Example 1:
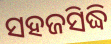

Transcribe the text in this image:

ସହଜସିଦ୍ଧି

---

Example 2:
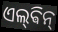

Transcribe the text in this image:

ଏଲ୍‌ଵିନ୍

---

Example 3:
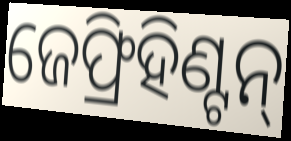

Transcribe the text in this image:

ଜେଫ୍ରିହିଣ୍ଟନ୍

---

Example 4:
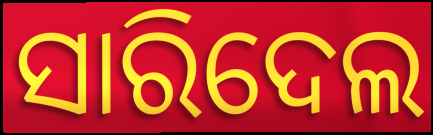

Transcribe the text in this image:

ସାରିଦେଲ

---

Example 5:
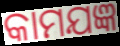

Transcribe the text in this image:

କାମଯଜ୍ଞ